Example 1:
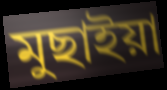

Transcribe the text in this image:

মুছাইয়া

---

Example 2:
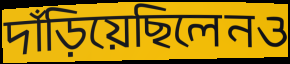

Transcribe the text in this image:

দাঁড়িয়েছিলেনও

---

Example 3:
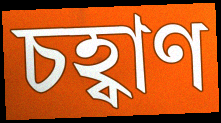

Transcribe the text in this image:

চহ্বাণ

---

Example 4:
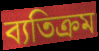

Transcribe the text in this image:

ব্যতিক্রম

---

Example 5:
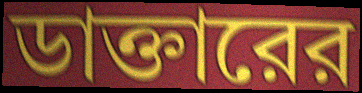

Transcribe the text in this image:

ডাক্তারের